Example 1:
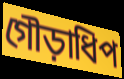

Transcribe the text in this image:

গৌড়াধিপ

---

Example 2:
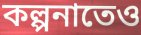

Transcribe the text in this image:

কল্পনাতেও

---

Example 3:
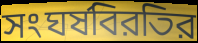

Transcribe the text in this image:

সংঘর্ষবিরতির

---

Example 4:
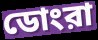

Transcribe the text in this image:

ডোংরা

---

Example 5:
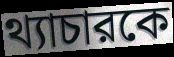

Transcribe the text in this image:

থ্যাচারকে